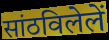
सांठविलेलें